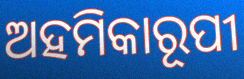
ଅହମିକାରୂପୀ